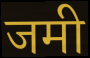
जमी